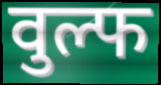
वुल्फ